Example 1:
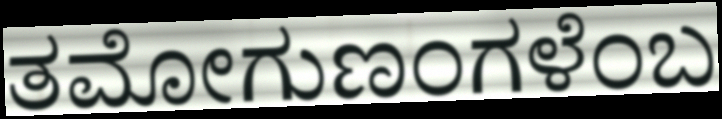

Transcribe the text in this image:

ತಮೋಗುಣಂಗಳೆಂಬ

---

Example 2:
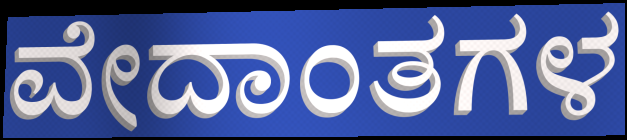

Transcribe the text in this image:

ವೇದಾಂತಗಳ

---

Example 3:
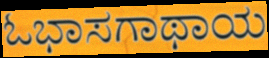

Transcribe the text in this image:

ಓಭಾಸಗಾಥಾಯ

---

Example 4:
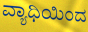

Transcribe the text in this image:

ವ್ಯಾಧಿಯಿಂದ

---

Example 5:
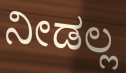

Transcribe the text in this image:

ನೀಡಲ್ಲ